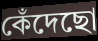
কেঁদেছো